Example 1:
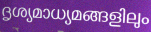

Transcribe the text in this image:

ദൃശ്യമാധ്യമങ്ങളിലും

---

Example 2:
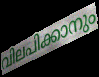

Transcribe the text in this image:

വിലപിക്കാനും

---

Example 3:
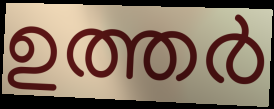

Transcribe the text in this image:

ഉത്തർ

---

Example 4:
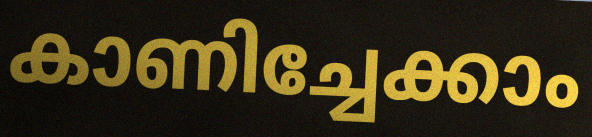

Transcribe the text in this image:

കാണിച്ചേക്കാം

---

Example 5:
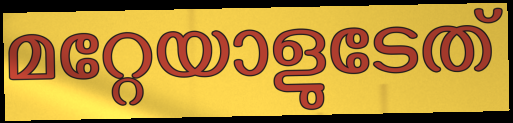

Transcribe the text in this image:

മറ്റേയാളുടേത്